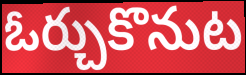
ఓర్చుకొనుట